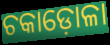
ଚକାଡ଼ୋଳା